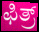
ಫಿತ್ರ್